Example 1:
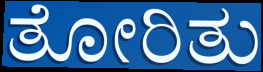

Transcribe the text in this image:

ತೋರಿತು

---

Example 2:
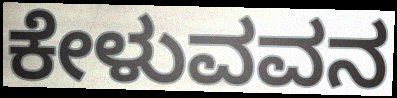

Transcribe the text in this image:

ಕೇಳುವವನ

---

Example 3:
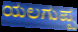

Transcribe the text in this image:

ಯಲಗುಪ್ಪ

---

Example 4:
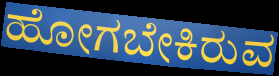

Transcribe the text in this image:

ಹೋಗಬೇಕಿರುವ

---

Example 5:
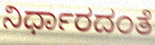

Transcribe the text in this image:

ನಿರ್ಧಾರದಂತೆ